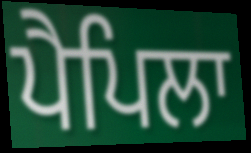
ਪੈਪਿਲਾ